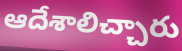
ఆదేశాలిచ్చారు